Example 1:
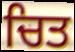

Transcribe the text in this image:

ਚਿਤ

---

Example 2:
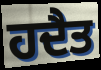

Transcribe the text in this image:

ਹਦੈਤ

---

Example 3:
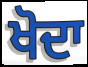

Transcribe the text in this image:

ਖੋਦਾ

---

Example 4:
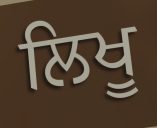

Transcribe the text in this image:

ਲਿਖੂ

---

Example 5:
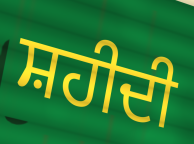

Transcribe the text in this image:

ਸ਼ਹੀਦੀ